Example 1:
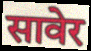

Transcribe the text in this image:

सावेर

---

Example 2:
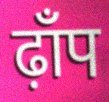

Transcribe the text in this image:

ढ़ाँप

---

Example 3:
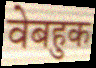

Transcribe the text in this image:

वेबहुक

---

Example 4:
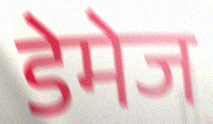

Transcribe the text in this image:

डेमेज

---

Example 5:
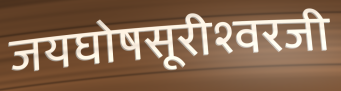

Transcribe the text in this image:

जयघोषसूरीश्वरजी